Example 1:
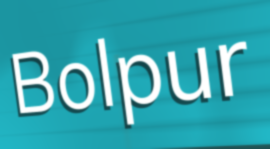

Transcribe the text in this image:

Bolpur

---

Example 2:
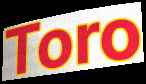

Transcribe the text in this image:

Toro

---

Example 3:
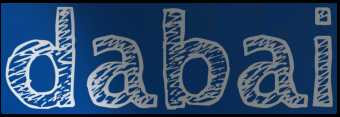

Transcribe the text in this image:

dabai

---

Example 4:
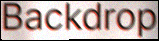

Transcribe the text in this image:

Backdrop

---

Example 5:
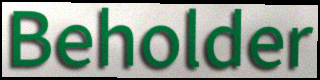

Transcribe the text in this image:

Beholder